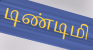
டிண்டிமி